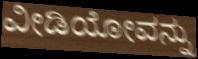
ವೀಡಿಯೋವನ್ನು